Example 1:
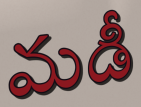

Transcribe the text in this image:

మడీ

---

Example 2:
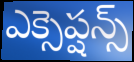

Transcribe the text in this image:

ఎక్సెప్షన్స్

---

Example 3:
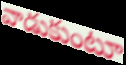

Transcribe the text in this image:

వాడుకుంటూ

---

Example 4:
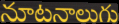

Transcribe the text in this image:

నూటనాలుగు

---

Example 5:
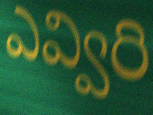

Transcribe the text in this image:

ఎవ్విరి